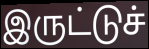
இருட்டுச்